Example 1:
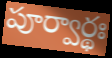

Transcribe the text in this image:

పూర్వార్థః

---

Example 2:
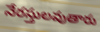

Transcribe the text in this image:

నేరస్తులవుతారు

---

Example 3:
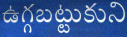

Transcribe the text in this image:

ఉగ్గబట్టుకుని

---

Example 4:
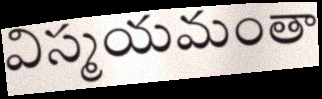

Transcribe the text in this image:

విస్మయమంతా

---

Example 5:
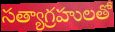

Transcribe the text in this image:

సత్యాగ్రహులతో